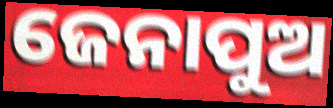
ଜେନାପୁଅ